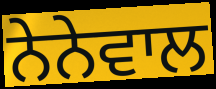
ਨੇਨੇਵਾਲ